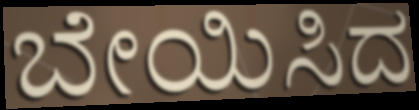
ಬೇಯಿಸಿದ